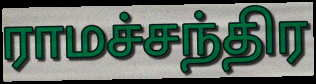
ராமச்சந்திர